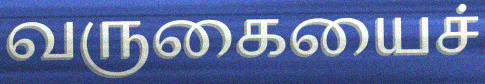
வருகையைச்